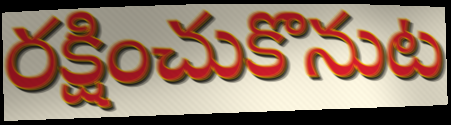
రక్షించుకొనుట